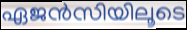
ഏജൻസിയിലൂടെ